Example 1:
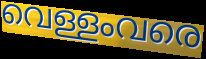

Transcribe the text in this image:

വെള്ളംവരെ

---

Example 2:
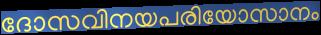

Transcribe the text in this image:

ദോസവിനയപരിയോസാനം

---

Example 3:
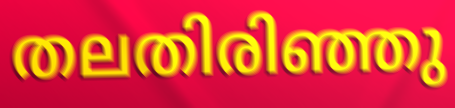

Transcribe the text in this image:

തലതിരിഞ്ഞു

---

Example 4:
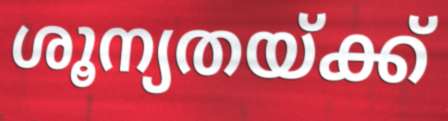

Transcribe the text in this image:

ശൂന്യതയ്ക്ക്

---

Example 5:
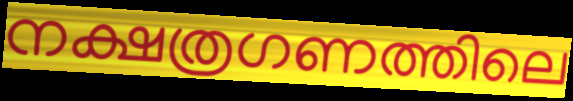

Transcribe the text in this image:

നക്ഷത്രഗണത്തിലെ